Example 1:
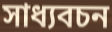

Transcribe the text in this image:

সাধ্যবচন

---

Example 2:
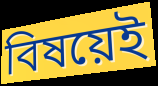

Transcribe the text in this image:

বিষয়েই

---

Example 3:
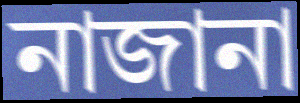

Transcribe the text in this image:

নাজানা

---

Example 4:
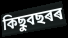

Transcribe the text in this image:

কিছুবছৰৰ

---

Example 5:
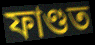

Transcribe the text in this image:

ফাণ্ডত